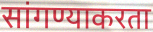
सांगण्याकरता